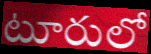
టూరులో